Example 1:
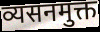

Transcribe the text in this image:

व्यसनमुक्त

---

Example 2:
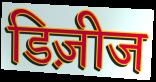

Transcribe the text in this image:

डिज़ीज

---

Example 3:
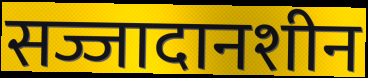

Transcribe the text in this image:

सज्जादानशीन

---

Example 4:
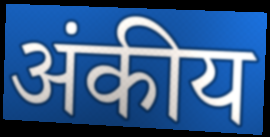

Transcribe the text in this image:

अंकीय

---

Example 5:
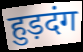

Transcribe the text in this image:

हुड़दंग